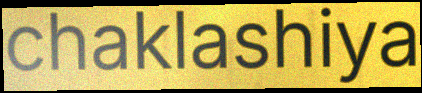
chaklashiya